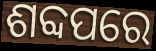
ଶବ୍ଦପରେ